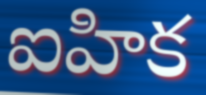
ఐహిక